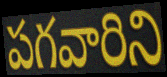
పగవారిని